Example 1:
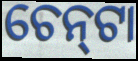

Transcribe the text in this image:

ଚେନ୍‌ଟା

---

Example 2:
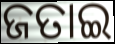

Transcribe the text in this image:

ଜତାଇ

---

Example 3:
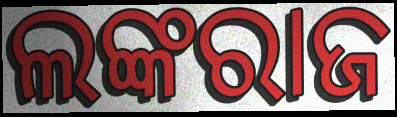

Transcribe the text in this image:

ଲଙ୍କରାଜ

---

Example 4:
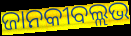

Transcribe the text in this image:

ଜାନକୀବଲ୍ଲଭ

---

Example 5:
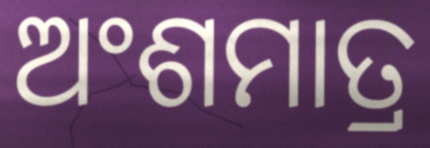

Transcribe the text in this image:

ଅଂଶମାତ୍ର